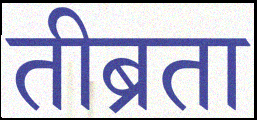
तीब्रता